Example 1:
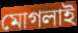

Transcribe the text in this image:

মোগলাই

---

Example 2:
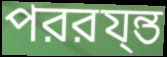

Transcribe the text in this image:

পররয্ন্ত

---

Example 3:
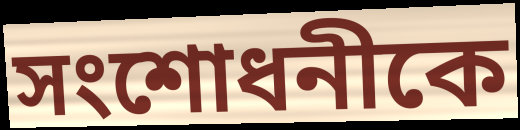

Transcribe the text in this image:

সংশোধনীকে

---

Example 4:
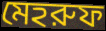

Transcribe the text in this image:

মেহরুফ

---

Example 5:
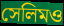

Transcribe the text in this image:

সেলিমও